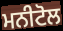
ਮਨੀਟੋਲ